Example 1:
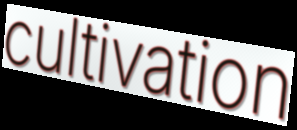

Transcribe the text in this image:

cultivation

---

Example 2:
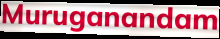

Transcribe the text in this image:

Muruganandam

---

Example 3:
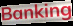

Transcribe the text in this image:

Banking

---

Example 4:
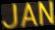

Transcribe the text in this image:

JAN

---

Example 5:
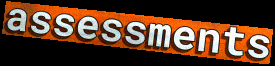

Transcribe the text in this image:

assessments